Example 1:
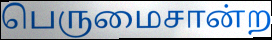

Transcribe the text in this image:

பெருமைசான்ற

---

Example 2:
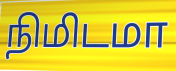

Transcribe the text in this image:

நிமிடமா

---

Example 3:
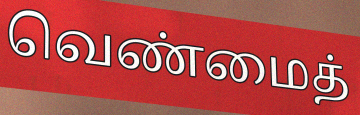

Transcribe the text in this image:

வெண்மைத்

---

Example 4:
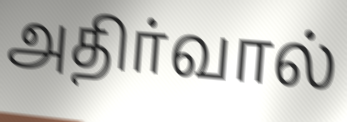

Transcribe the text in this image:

அதிர்வால்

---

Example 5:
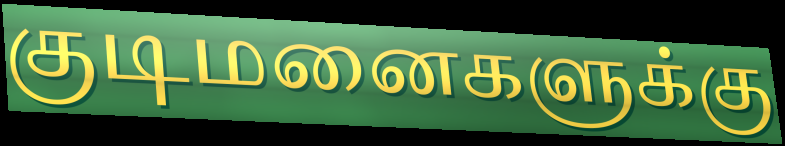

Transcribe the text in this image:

குடிமனைகளுக்கு